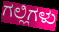
ಗಲ್ಲಿಗಳು